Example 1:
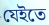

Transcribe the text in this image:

যেইতে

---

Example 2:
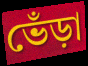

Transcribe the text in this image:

ভেঁড়া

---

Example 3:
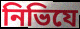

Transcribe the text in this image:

নিভিযে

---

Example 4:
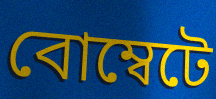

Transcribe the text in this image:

বোম্বেটে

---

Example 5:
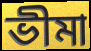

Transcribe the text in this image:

ভীমা